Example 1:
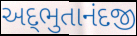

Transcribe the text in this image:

અદ્‌ભુતાનંદજી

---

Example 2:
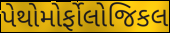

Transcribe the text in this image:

પેથોમોર્ફોલોજિકલ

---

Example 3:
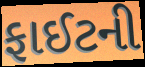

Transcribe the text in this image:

ફાઈટની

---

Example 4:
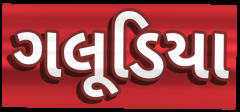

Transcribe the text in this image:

ગલૂડિયા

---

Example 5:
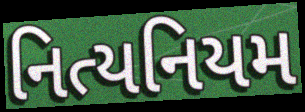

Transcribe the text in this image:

નિત્યનિયમ